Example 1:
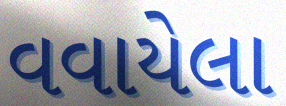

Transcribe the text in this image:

વવાયેલા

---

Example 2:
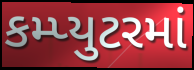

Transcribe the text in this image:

કમ્પ્યુટરમાં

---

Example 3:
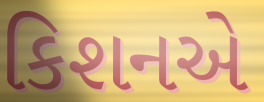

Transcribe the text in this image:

કિશનએ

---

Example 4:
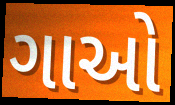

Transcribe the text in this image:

ગાઓ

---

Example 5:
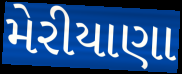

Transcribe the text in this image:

મેરીયાણા